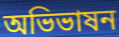
অভিভাষন